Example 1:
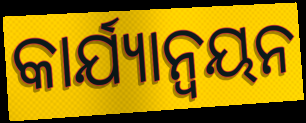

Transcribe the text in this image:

କାର୍ଯ୍ୟାନ୍ବୟନ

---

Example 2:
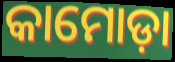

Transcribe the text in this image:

କାମୋଡ଼ା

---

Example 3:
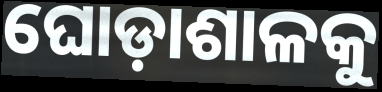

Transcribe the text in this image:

ଘୋଡ଼ାଶାଳକୁ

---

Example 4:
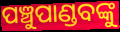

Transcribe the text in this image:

ପଞ୍ଚୁପାଣ୍ଡବଙ୍କୁ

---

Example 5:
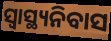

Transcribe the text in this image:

ସ୍ୱାସ୍ଥ୍ୟନିବାସ